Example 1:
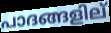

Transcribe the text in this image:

പാദങ്ങളില്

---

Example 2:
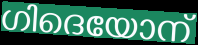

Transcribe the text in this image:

ഗിദെയോന്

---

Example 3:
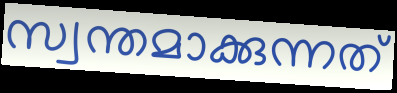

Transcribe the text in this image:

സ്വന്തമാക്കുന്നത്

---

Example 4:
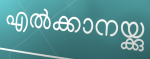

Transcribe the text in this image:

എൽക്കാനയ്ക്കു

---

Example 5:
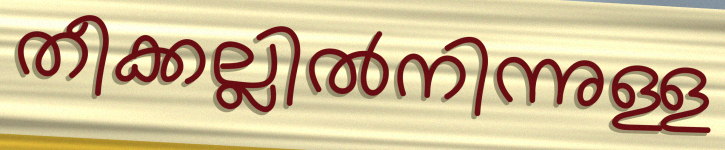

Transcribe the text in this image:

തീക്കല്ലിൽനിന്നുള്ള